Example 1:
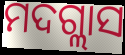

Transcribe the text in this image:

ମଦଗ୍ଲାସ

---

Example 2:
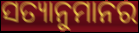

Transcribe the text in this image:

ସତ୍ୟାନୁମାନର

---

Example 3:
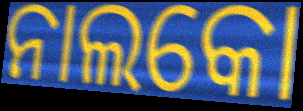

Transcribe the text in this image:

ନାଲକୋ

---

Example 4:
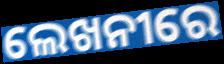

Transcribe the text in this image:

ଲେଖନୀରେ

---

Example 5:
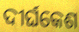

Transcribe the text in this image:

ଦୀର୍ଘକେଶ